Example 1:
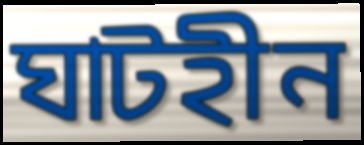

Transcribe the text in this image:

ঘাটহীন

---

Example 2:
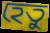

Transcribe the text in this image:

হেতু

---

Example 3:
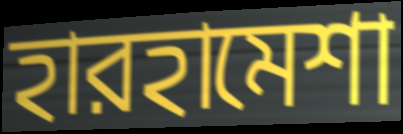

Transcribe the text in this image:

হারহামেশা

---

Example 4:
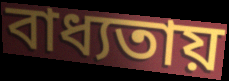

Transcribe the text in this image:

বাধ্যতায়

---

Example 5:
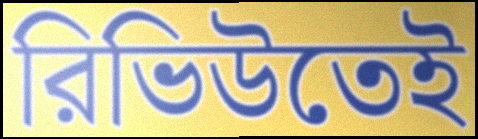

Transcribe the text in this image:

রিভিউতেই